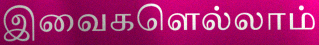
இவைகளெல்லாம்